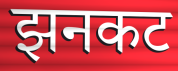
झनकट